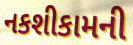
નકશીકામની